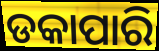
ଡକାପାରି